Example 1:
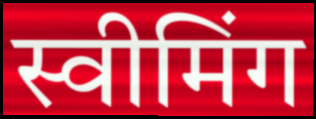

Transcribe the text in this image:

स्‍वीमिंग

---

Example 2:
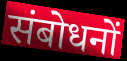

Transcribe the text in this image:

संबोधनों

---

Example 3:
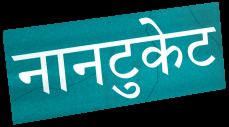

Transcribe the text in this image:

नानटुकेट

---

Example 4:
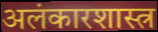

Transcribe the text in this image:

अलंकारशास्त्र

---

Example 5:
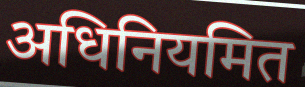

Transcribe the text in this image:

अधिनियमित